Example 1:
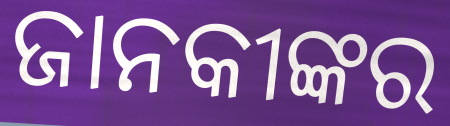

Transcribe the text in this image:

ଜାନକୀଙ୍କର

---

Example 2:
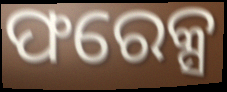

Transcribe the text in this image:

ଫରେକ୍ସ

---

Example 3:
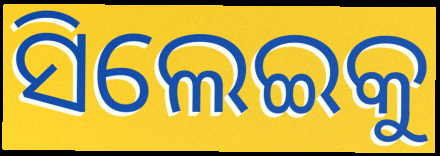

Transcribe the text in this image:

ସିଲେଇକୁ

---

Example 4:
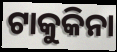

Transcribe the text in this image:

ଟାକୁକିନା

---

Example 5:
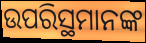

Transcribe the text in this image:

ଉପରିସ୍ଥମାନଙ୍କ